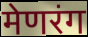
मेणरंग